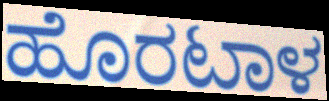
ಹೊರಟಾಳ